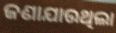
ଜଣାଯାଉଥିଲା